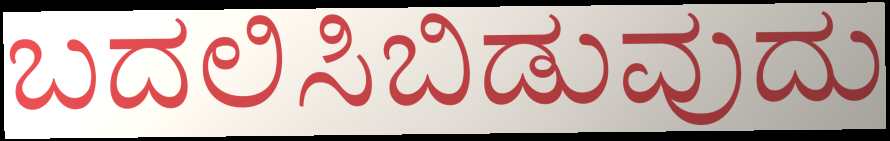
ಬದಲಿಸಿಬಿಡುವುದು